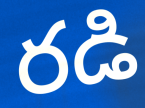
రడి